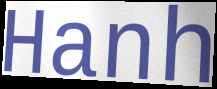
Hanh